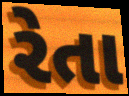
રેતા